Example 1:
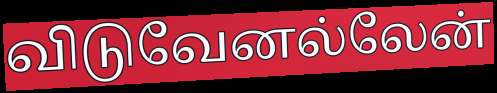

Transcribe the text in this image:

விடுவேனல்லேன்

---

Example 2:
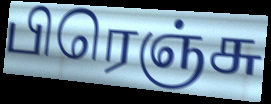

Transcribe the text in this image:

பிரெஞ்சு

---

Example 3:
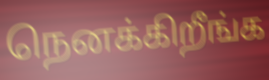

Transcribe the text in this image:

நெனக்கிறீங்க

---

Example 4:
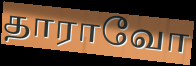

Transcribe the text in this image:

தாராவோ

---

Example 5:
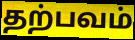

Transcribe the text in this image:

தற்பவம்